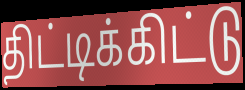
திட்டிக்கிட்டு